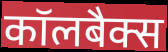
कॉलबैक्स